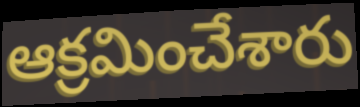
ఆక్రమించేశారు